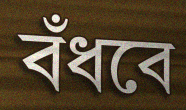
বঁধবে